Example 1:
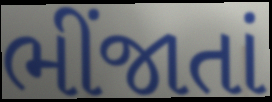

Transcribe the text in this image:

ભીંજાતાં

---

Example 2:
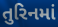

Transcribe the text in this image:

તુરિનમાં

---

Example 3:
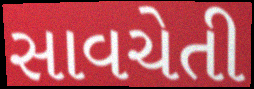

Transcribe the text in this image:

સાવચેતી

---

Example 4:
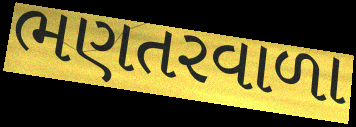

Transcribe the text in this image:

ભણતરવાળા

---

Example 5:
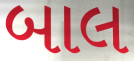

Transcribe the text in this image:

બાલ